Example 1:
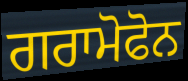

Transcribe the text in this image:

ਗਰਾਮੋਫੋਨ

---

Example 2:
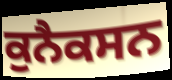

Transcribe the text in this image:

ਕੁਨੈਕਸਨ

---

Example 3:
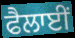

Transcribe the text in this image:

ਫੈਲਾਈਂ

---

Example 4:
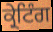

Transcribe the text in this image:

ਕ੍ਰੇਟਿੰਗ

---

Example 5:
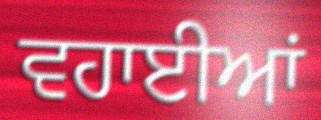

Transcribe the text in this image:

ਵਹਾਈਆਂ